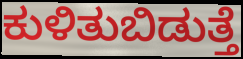
ಕುಳಿತುಬಿಡುತ್ತೆ